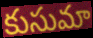
కుసుమా